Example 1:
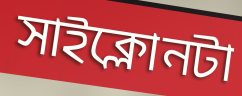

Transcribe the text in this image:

সাইক্লোনটা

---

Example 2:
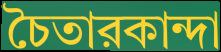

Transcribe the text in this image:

চৈতারকান্দা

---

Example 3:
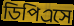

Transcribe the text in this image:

ডিপিএসে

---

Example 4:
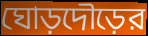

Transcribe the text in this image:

ঘোড়দৌড়ের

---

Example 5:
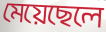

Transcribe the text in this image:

মেয়েছেলে